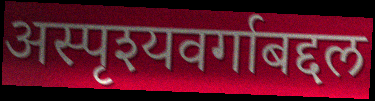
अस्पृश्यवर्गाबद्दल